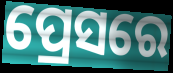
ପ୍ରେସରେ